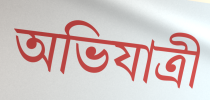
অভিযাত্রী